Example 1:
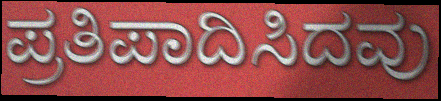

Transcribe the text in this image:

ಪ್ರತಿಪಾದಿಸಿದವು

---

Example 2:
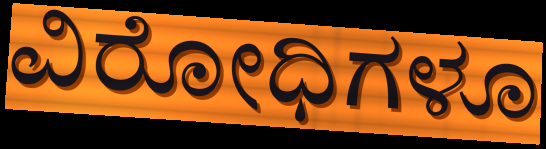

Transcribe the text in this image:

ವಿರೋಧಿಗಳೂ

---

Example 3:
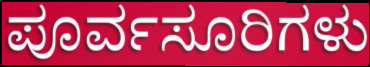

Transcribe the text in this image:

ಪೂರ್ವಸೂರಿಗಳು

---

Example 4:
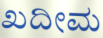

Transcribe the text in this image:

ಖದೀಮ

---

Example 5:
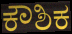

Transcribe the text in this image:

ಕೌಶಿಕ